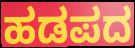
ಹಡಪದ